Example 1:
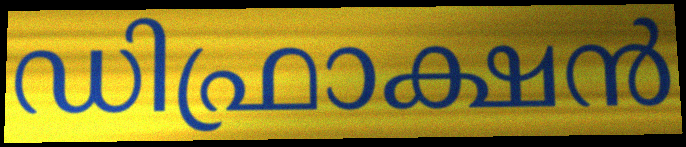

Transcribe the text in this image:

ഡിഫ്രാക്ഷൻ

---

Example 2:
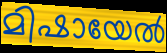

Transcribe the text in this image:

മിഷായേൽ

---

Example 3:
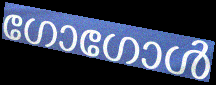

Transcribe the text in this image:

ഗോഗോൾ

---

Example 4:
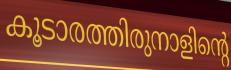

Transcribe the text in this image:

കൂടാരത്തിരുനാളിന്റെ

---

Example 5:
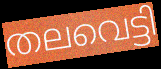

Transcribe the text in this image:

തലവെട്ടി